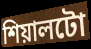
শিয়ালটো